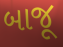
બાજૂ